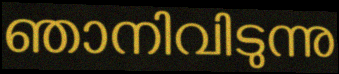
ഞാനിവിടുന്നു